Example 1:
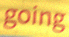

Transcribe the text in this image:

going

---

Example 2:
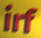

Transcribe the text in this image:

irf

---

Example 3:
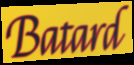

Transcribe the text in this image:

Batard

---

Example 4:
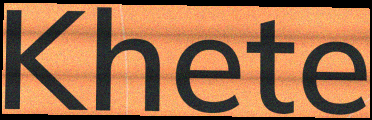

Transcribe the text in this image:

Khete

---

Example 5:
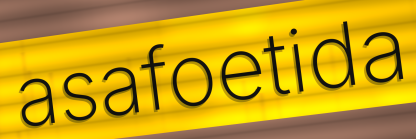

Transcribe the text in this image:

asafoetida